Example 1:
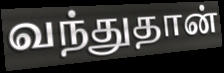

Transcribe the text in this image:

வந்துதான்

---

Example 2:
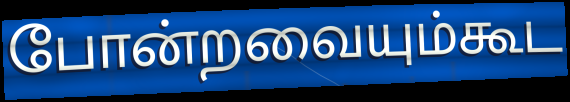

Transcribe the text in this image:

போன்றவையும்கூட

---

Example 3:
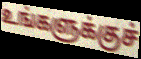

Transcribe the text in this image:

உங்களுக்குச்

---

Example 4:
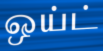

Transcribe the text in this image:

ஒய்ட்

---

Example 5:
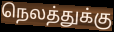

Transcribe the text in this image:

நெலத்துக்கு